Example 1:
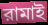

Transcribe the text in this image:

রামাই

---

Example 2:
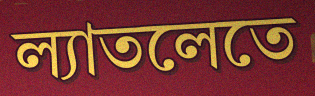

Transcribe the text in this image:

ল্যাতলেতে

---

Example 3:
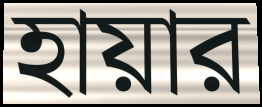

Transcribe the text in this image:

হায়ার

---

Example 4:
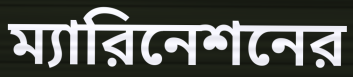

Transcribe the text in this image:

ম্যারিনেশনের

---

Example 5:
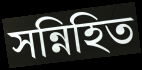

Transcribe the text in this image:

সন্নিহিত